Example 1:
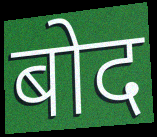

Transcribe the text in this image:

बोद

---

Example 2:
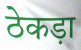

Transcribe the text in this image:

ठेकड़ा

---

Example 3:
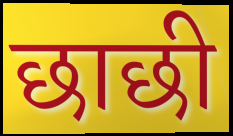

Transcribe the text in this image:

छाछी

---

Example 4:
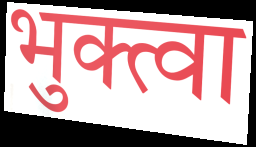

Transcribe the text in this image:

भुक्त्वा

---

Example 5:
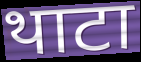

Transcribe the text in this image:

थाटा